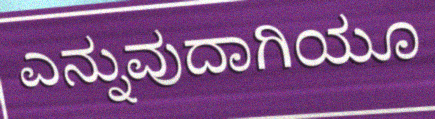
ಎನ್ನುವುದಾಗಿಯೂ